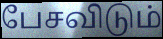
பேசவிடும்